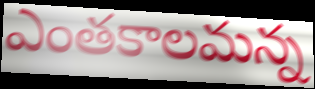
ఎంతకాలమన్న